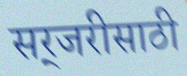
सर्जरीसाठी